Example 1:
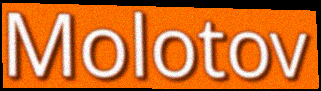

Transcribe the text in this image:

Molotov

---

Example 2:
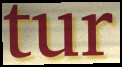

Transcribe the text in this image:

tur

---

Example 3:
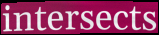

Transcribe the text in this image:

intersects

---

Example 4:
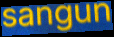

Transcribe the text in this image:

sangun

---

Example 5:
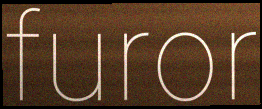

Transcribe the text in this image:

furor